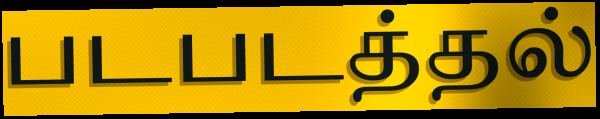
படபடத்தல்